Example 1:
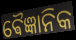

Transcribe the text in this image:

ଵୈଜ୍ଞାନିକ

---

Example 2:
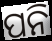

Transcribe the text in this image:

ପନି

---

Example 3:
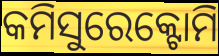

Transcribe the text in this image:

କମିସୁରେକ୍ଟୋମି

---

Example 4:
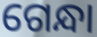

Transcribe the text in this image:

ଗେନ୍ଧା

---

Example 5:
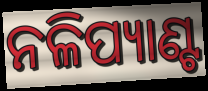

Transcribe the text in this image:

ନଳିପ୍ୟାଣ୍ଟ